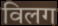
विलग